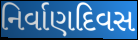
નિર્વાણદિવસ